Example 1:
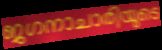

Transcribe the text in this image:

ജഗനാചാരിയുടെ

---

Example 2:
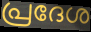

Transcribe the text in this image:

പ്രദേശ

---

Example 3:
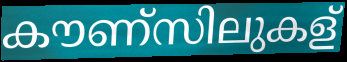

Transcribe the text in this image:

കൗണ്സിലുകള്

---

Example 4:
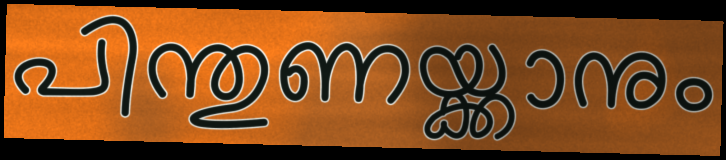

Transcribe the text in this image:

പിന്തുണയ്ക്കാനും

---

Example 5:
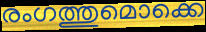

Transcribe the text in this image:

രംഗത്തുമൊക്കെ